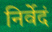
निर्वेदं